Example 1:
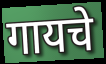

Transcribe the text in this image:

गायचे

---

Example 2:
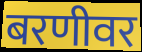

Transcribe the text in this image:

बरणीवर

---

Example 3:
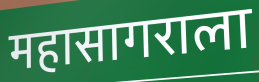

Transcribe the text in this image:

महासागराला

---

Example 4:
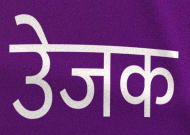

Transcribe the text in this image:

उेजक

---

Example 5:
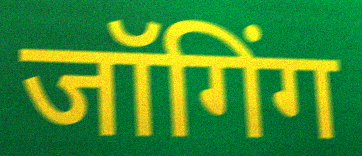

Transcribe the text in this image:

जॉगिंग